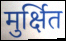
मुर्क्षित